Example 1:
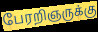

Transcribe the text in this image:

பேரறிஞருக்கு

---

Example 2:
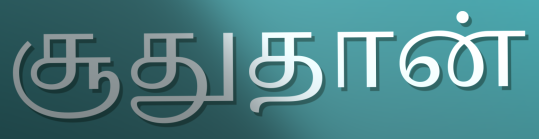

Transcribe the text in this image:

சூதுதான்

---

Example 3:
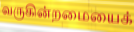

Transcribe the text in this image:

வருகின்றமையைக்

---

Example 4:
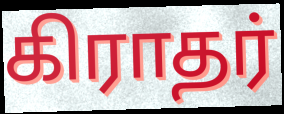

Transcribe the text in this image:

கிராதர்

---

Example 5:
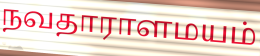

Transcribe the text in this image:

நவதாராளமயம்